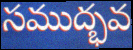
సముద్భవ